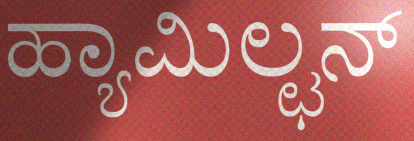
ಹ್ಯಾಮಿಲ್ಟನ್